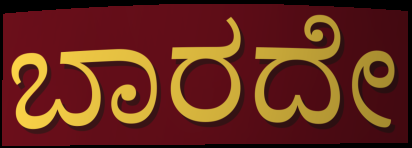
ಬಾರದೇ